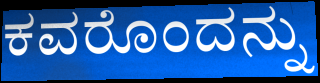
ಕವರೊಂದನ್ನು